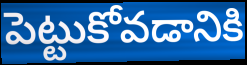
పెట్టుకోవడానికి